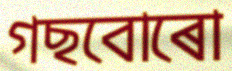
গছবোৰো